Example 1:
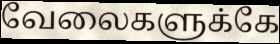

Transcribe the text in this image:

வேலைகளுக்கே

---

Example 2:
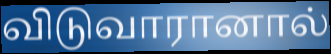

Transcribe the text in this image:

விடுவாரானால்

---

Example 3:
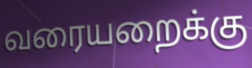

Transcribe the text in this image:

வரையறைக்கு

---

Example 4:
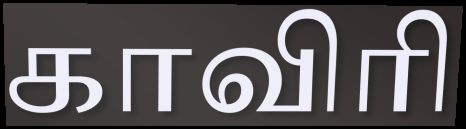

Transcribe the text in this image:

காவிரி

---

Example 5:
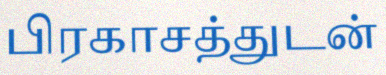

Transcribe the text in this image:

பிரகாசத்துடன்